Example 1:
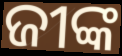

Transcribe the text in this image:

ଜୀଙ୍କ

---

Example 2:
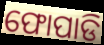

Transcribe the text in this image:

ଫୋପାଡି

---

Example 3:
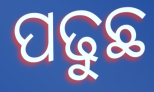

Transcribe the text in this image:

ପଢୁଛ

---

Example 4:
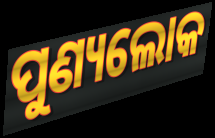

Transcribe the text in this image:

ପୁଣ୍ୟଲୋକ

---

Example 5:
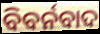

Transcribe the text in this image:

ବିବର୍ନବାଦ